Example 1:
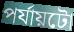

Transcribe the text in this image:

পৰ্যায়টো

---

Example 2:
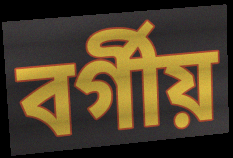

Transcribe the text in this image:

বৰ্গীয়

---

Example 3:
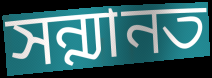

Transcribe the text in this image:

সন্মানত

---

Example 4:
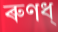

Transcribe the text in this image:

ৰুণধ্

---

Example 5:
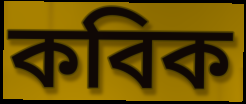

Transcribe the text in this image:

কবিক